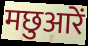
मछुआरें